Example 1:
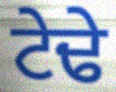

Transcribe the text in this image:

ਟੇਢੇ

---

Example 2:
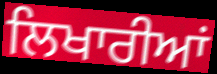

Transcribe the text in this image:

ਲਿਖਾਰੀਆਂ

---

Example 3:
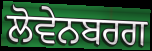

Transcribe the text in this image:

ਲੋਵੇਨਬਰਗ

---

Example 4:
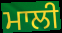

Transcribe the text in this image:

ਮਾਲੀ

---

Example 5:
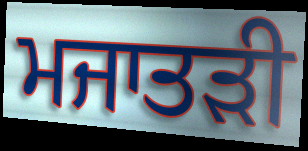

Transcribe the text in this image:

ਮਜਾਤੜੀ